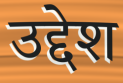
उद्देश